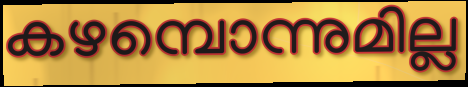
കഴമ്പൊന്നുമില്ല